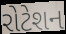
રોટેશન